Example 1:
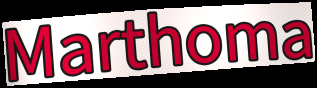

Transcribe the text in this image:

Marthoma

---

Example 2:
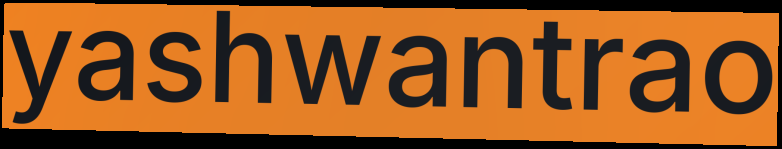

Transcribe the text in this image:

yashwantrao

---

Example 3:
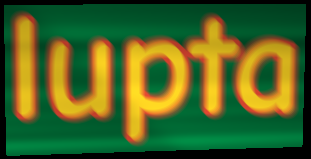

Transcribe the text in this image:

lupta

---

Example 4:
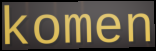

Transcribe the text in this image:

komen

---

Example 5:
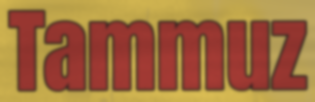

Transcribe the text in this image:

Tammuz